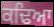
ਕਢਿਆ